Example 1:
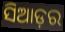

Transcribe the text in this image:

ସିଆଡ଼ର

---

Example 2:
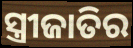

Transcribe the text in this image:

ସ୍ତ୍ରୀଜାତିର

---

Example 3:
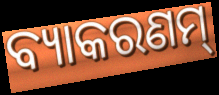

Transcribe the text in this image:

ବ୍ୟାକରଣମ୍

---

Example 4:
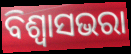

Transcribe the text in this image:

ବିଶ୍ୱାସଭରା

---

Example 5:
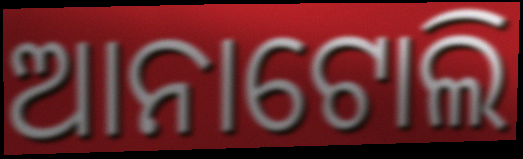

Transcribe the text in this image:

ଆନାଟୋଲି